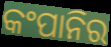
କଂପାନିର